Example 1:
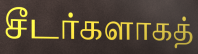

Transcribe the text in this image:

சீடர்களாகத்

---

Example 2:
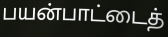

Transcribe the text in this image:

பயன்பாட்டைத்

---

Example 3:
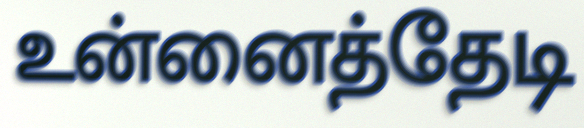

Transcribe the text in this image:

உன்னைத்தேடி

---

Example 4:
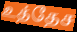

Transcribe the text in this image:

உத்தேச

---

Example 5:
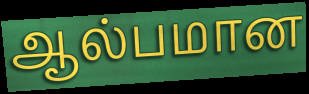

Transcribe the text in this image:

ஆல்பமான